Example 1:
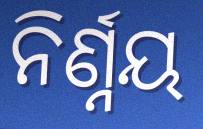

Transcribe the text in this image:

ନିର୍ଣ୍ନୟ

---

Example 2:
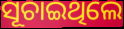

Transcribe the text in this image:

ସୂଚାଇଥିଲେ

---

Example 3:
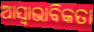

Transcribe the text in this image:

ଆସ୍ବାଭାବିକତା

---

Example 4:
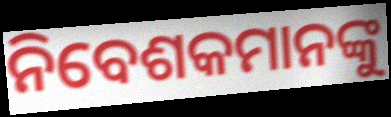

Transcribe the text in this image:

ନିବେଶକମାନଙ୍କୁ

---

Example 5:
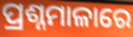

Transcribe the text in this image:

ପ୍ରଶ୍ନମାଳାରେ